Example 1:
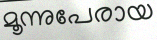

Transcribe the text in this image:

മൂന്നുപേരായ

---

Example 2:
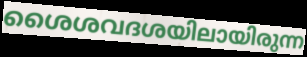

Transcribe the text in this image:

ശൈശവദശയിലായിരുന്ന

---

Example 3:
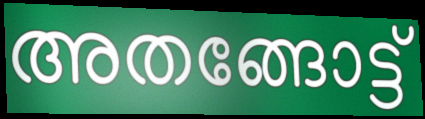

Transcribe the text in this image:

അതങ്ങോട്ട്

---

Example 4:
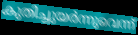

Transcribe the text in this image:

കുതിച്ചുയർന്നുവെന്ന്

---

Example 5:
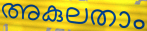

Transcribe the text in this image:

അകുലതാം